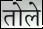
तोले